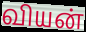
வியன்